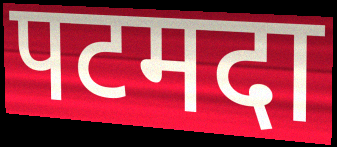
पटमदा